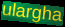
ulargha